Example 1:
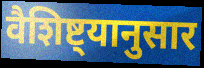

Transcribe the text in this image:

वैशिष्ट्यानुसार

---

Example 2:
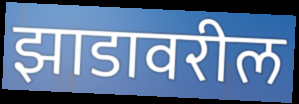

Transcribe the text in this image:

झाडावरील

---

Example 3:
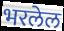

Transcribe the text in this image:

भरलेल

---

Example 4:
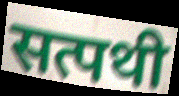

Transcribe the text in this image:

सत्पथी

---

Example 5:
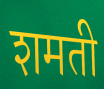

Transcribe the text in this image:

शमती